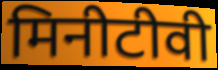
मिनीटीवी